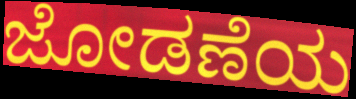
ಜೋಡಣೆಯ